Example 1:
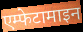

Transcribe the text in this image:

एम्फेटामाइन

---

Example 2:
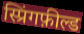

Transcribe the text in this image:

स्प्रिंगफ़ील्ड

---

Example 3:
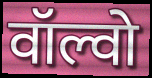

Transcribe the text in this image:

वॉल्वो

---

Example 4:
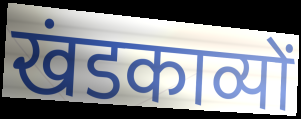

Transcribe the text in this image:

खंडकाव्यों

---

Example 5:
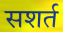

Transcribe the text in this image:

सशर्त